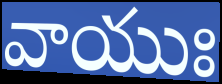
వాయుః